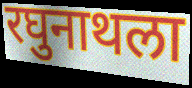
रघुनाथला